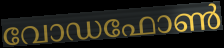
വോഡഫോൺ